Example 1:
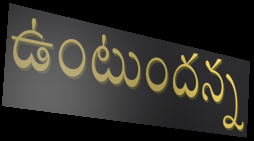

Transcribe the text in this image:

ఉంటుందన్న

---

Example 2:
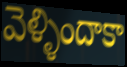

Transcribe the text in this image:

వెళ్ళిందాకా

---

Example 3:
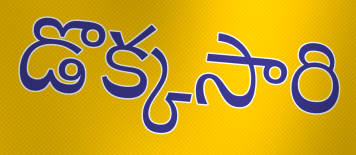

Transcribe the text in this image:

డొక్కసారి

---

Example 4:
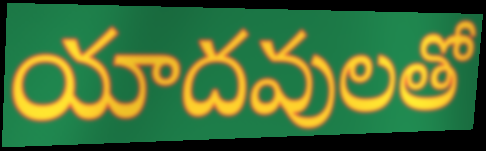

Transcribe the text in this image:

యాదవులతో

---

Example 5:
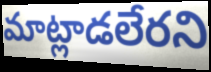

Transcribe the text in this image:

మాట్లాడలేరని